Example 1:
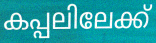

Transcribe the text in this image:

കപ്പലിലേക്ക്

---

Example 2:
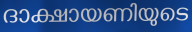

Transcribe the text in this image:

ദാക്ഷായണിയുടെ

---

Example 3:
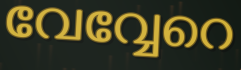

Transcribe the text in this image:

വേവ്വേറെ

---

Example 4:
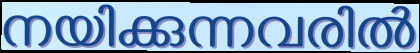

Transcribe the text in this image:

നയിക്കുന്നവരിൽ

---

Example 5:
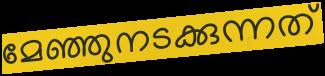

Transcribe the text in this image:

മേഞ്ഞുനടക്കുന്നത്